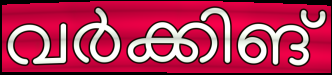
വർക്കിങ്